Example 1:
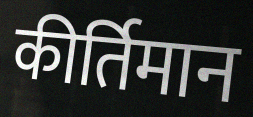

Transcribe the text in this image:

कीर्तिमान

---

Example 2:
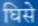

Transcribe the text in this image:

घिसे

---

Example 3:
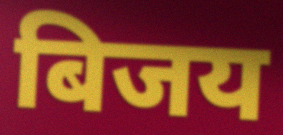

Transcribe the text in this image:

बिजय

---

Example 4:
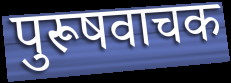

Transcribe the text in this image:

पुरूषवाचक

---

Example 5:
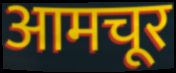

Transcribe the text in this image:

आमचूर